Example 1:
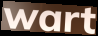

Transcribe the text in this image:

wart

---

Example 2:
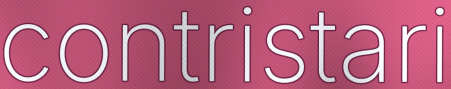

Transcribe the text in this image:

contristari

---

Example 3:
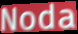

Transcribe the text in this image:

Noda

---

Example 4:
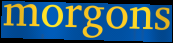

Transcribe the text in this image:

morgons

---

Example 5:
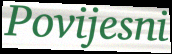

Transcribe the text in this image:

Povijesni